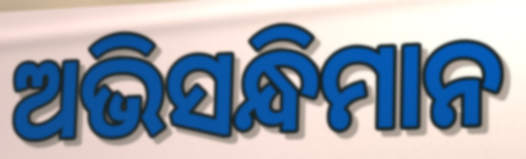
ଅଭିସନ୍ଧିମାନ